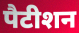
पैटीशन